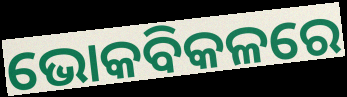
ଭୋକବିକଳରେ